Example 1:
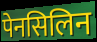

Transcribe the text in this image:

पेनसिलिन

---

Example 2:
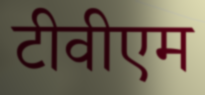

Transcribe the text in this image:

टीवीएम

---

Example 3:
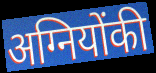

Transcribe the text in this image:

अग्नियोंकी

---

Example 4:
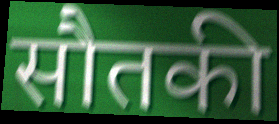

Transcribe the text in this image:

सौतकी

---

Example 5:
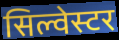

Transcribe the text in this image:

सिल्वेस्टर